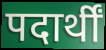
पदार्थीं